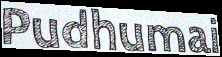
Pudhumai